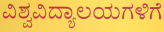
ವಿಶ್ವವಿದ್ಯಾಲಯಗಳಿಗೆ